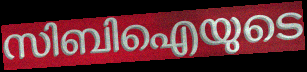
സിബിഐയുടെ